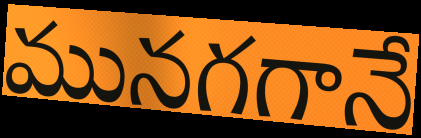
మునగగానే